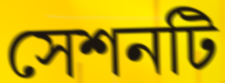
সেশনটি